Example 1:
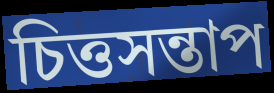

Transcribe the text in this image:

চিত্তসন্তাপ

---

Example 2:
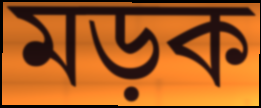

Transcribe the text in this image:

মড়ক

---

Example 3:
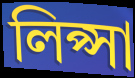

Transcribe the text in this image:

লিপ্সা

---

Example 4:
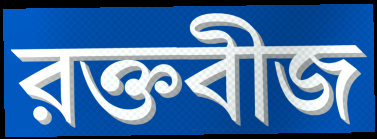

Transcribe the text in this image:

রক্তবীজ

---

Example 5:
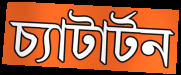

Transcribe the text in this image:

চ্যাটার্টন